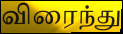
விரைந்து